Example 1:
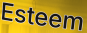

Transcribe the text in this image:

Esteem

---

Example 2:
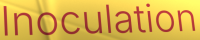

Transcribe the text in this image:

Inoculation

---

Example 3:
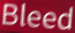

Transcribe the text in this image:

Bleed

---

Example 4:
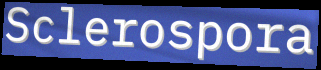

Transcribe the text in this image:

Sclerospora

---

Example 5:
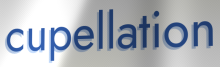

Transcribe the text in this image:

cupellation